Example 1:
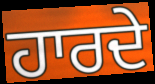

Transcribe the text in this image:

ਹਾਰਦੇ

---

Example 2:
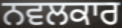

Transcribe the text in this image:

ਨਵਲਕਾਰ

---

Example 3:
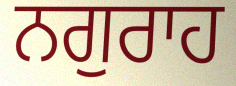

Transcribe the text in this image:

ਨਗੁਰਾਹ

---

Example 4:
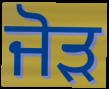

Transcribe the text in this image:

ਜੋੜ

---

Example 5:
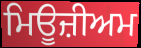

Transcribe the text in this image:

ਮਿਊਜ਼ੀਅਮ